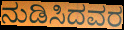
ನುಡಿಸಿದವರ